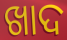
ଖାଦ